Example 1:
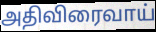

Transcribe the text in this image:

அதிவிரைவாய்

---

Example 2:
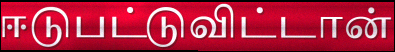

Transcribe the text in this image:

ஈடுபட்டுவிட்டான்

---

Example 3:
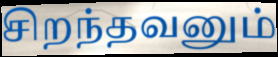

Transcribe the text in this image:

சிறந்தவனும்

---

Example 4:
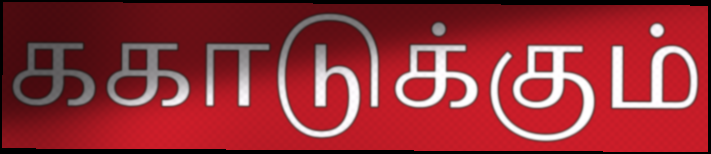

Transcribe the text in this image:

ககாடுக்கும்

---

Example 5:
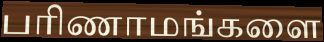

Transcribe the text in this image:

பரிணாமங்களை